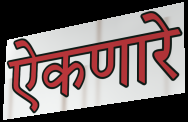
ऐकणारे